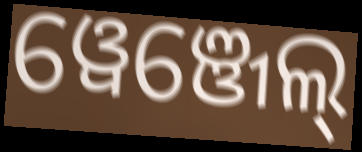
ୱେଞ୍ଜେଲ୍